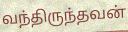
வந்திருந்தவன்